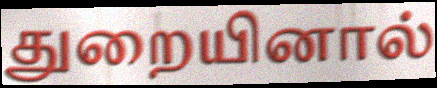
துறையினால்